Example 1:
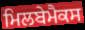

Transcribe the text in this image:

ਮਿਲਬੇਮੈਕਸ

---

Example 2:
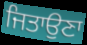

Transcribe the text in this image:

ਜਿਤਾਉਣਾ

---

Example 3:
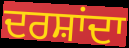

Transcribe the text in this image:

ਦਰਸ਼ਾਂਦਾ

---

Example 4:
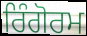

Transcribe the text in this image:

ਰਿੰਗੋਰਮ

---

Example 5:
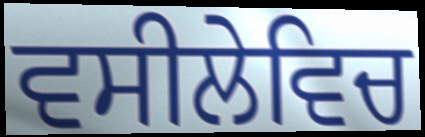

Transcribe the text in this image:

ਵਸੀਲੇਵਿਚ